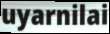
uyarnilai